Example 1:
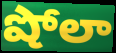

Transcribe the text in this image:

షోలా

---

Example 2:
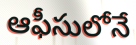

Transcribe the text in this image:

ఆఫీసులోనే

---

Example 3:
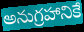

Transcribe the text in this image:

అనుగ్రహానికే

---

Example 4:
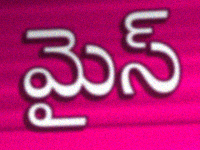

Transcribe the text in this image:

మైస్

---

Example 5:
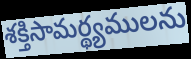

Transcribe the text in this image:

శక్తిసామర్థ్యములను